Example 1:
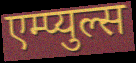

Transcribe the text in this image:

एम्प्युल्स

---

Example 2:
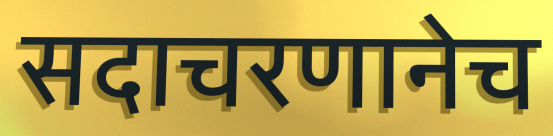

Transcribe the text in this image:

सदाचरणानेच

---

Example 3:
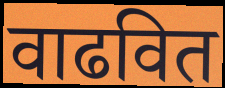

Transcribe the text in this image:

वाढवित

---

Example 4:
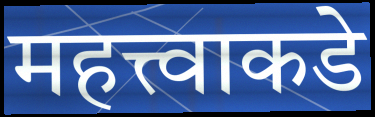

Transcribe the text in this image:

महत्त्वाकडे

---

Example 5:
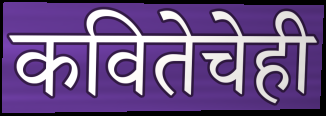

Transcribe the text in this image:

कवितेचेही